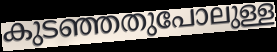
കുടഞ്ഞതുപോലുള്ള